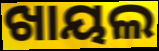
ଖାୟଲ